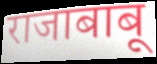
राजाबाबू